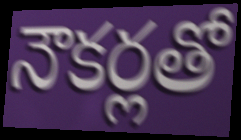
నౌకర్లతో